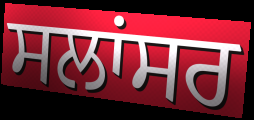
ਸਲਾਂਸਰ